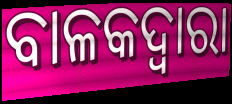
ବାଳକଦ୍ୱାରା